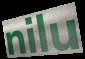
nilu